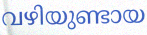
വഴിയുണ്ടായ